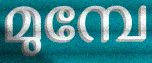
മുമ്പേ